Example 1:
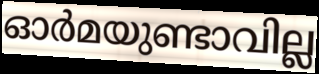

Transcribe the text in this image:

ഓർമയുണ്ടാവില്ല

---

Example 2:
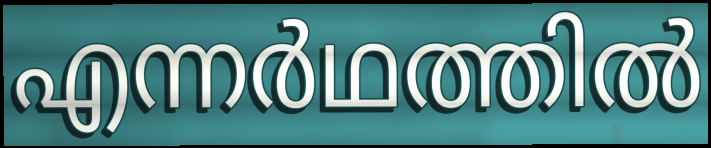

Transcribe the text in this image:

എന്നർഥത്തിൽ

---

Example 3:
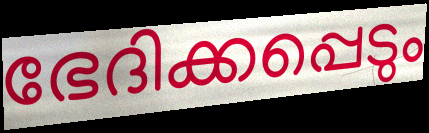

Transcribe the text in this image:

ഭേദിക്കപ്പെടും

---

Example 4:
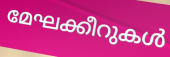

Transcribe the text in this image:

മേഘക്കീറുകൾ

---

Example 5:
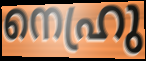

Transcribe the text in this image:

നെഹ്രു